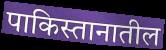
पाकिस्‍तानातील